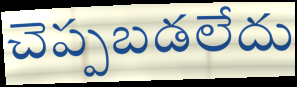
చెప్పబడలేదు